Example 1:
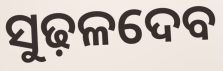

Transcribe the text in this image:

ସୁଢ଼ଳଦେବ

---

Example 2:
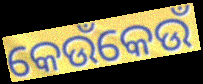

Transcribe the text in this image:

କେଉଁକେଉଁ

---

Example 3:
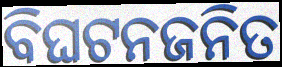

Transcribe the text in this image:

ବିଘଟନଜନିତ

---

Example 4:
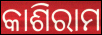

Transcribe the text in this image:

କାଶିରାମ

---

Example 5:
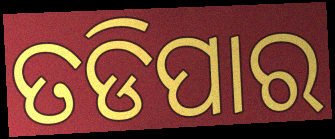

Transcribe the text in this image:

ତଡିପାର